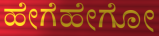
ಹೇಗೆಹೇಗೋ